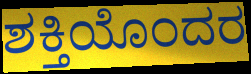
ಶಕ್ತಿಯೊಂದರ